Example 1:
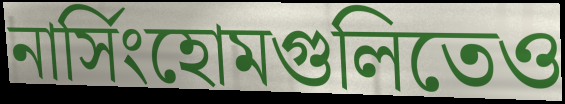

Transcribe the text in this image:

নার্সিংহোমগুলিতেও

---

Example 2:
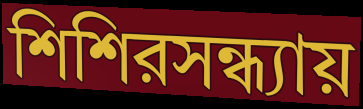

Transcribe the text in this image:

শিশিরসন্ধ্যায়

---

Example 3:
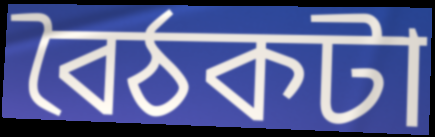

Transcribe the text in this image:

বৈঠকটা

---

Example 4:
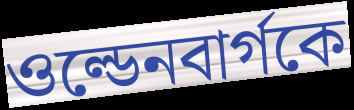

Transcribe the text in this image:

ওল্ডেনবার্গকে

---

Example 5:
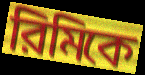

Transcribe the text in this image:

রিমিকে